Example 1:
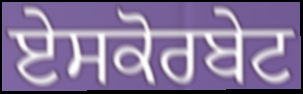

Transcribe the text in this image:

ਏਸਕੋਰਬੇਟ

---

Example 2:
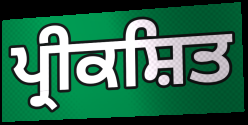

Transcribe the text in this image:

ਪ੍ਰੀਕਸ਼ਿਤ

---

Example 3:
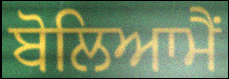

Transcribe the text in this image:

ਬੋਲਿਆਮੈਂ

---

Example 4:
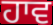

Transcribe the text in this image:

ਹਾਵ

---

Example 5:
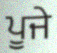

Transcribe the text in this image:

ਪੂਜੇ